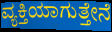
ವ್ಯಕ್ತಿಯಾಗುತ್ತೇನೆ